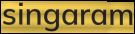
singaram